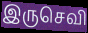
இருசெவி